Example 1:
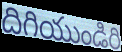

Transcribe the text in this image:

దిగియుండిరి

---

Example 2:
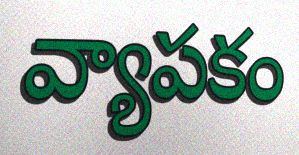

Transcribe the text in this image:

వ్యాపకం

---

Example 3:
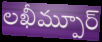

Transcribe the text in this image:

లఖీమ్పూర్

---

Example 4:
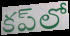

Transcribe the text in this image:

కప్‌లో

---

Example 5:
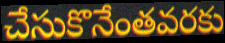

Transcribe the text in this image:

చేసుకొనేంతవరకు